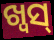
ଖ୍ୱସ୍